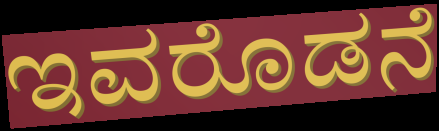
ಇವರೊಡನೆ